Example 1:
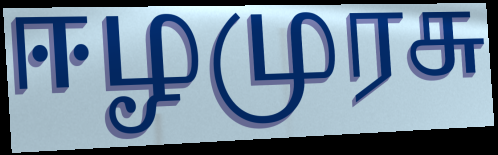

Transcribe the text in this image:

ஈழமுரசு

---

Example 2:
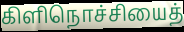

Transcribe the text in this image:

கிளிநொச்சியைத்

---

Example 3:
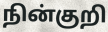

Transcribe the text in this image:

நின்குறி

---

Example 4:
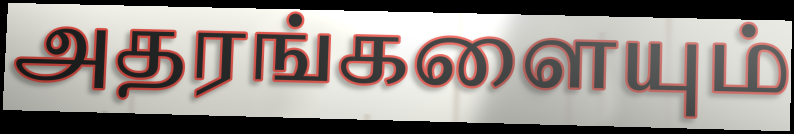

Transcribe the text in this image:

அதரங்களையும்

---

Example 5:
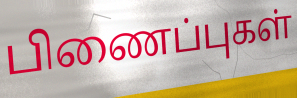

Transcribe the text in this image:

பிணைப்புகள்